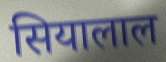
सियालाल